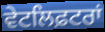
ਵੇਟਲਿਫ਼ਟਰਾਂ